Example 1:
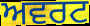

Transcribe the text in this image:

ਅਵਰਟ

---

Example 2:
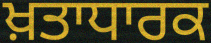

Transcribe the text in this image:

ਖ਼ਤਾਧਾਰਕ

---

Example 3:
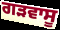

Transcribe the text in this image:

ਗੜਵਾਸੂ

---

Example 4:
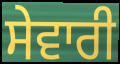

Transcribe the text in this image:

ਸੇਵਾਰੀ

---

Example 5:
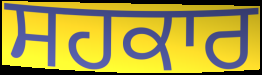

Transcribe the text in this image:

ਸਹਕਾਰ